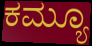
ಕಮ್ಯೂ